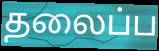
தலைப்ப